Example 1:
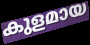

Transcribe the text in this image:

കുളമായ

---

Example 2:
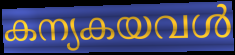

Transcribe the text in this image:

കന്യകയവൾ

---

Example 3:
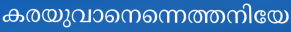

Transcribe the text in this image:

കരയുവാനെന്നെത്തനിയേ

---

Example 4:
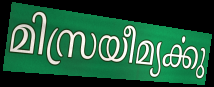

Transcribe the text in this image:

മിസ്രയീമ്യൎക്കു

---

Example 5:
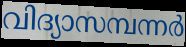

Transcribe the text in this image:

വിദ്യാസമ്പന്നർ